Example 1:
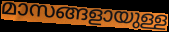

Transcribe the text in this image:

മാസങ്ങളായുള്ള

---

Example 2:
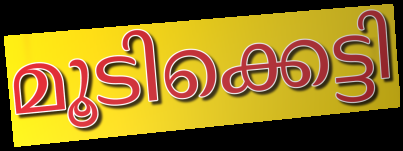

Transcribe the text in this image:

മൂടിക്കെട്ടി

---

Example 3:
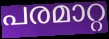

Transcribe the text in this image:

പരമാറ്റ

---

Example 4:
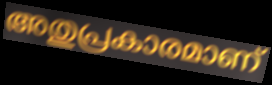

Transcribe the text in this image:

അതുപ്രകാരമാണ്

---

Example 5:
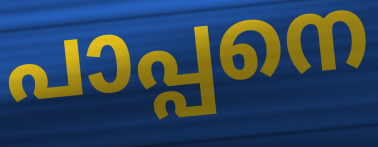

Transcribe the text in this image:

പാപ്പനെ